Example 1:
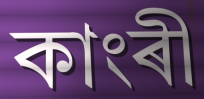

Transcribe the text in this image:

কাংৰী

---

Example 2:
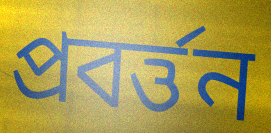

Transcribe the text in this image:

প্ৰবৰ্ত্তন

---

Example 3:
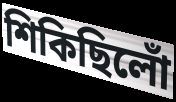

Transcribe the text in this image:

শিকিছিলোঁ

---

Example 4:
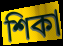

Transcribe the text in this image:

শিকা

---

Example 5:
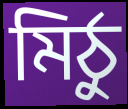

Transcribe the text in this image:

মিঠু